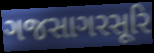
ગજસાગરસૂરિ